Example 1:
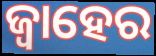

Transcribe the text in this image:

ଜ୍ୱାହେର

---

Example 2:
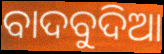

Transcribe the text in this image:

ବାଦବୁଦିଆ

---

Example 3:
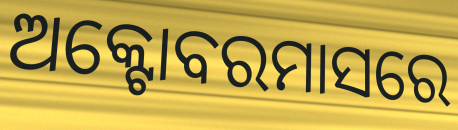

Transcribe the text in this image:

ଅକ୍ଟୋବରମାସରେ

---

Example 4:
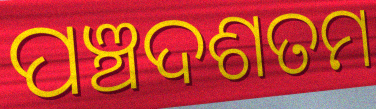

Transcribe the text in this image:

ପଞ୍ଚଦଶତମ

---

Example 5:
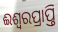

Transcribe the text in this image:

ଈଶ୍ଵରପ୍ରାପ୍ତି